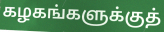
கழகங்களுக்குத்